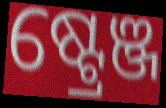
ଷ୍ଟ୍ରେଞ୍ଜ